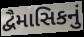
દ્વૈમાસિકનું